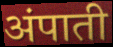
अंपाती